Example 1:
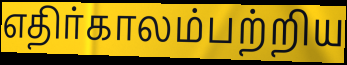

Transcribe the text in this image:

எதிர்காலம்பற்றிய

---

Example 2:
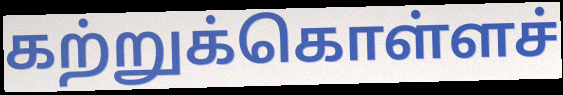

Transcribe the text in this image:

கற்றுக்கொள்ளச்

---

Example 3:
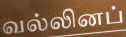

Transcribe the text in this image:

வல்லினப்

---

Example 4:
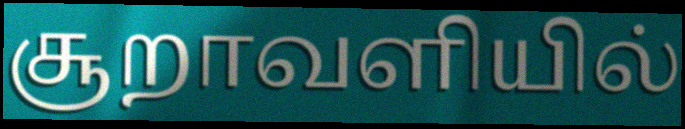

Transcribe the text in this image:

சூறாவளியில்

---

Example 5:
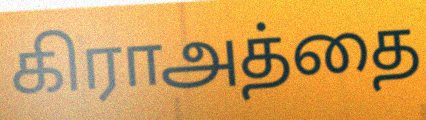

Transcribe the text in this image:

கிராஅத்தை